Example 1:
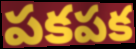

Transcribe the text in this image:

పకపక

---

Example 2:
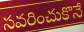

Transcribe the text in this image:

సవరించుకొనే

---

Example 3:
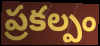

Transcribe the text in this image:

ప్రకల్పం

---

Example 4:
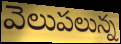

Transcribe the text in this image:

వెలుపలున్న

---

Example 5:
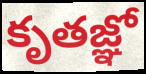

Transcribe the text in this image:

కృతజ్ఞో